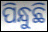
ପିନ୍ଧୁଛି